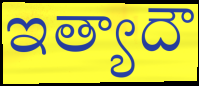
ఇత్యాదౌ